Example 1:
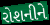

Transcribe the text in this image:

રોશનીને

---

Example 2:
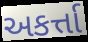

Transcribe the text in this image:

અકર્ત્તા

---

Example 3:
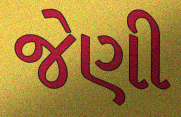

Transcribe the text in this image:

જેણી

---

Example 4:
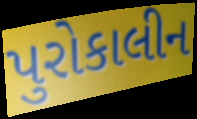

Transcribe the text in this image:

પુરોકાલીન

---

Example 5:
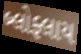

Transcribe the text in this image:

બ્લોફ્લાય